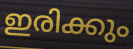
ഇരിക്കും